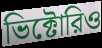
ভিক্টোরিও